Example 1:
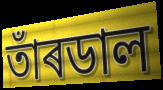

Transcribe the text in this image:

তাঁৰডাল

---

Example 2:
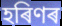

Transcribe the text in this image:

হৰিণৰ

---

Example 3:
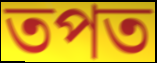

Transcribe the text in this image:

তপত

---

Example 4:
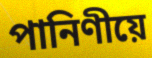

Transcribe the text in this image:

পানিণীয়ে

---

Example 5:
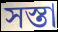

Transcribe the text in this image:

সস্তা